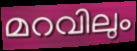
മറവിലും